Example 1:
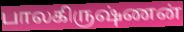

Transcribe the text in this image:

பாலகிருஷ்ணன்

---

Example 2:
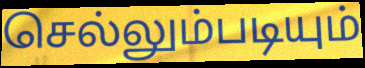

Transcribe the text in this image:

செல்லும்படியும்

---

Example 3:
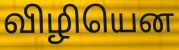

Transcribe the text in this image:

விழியென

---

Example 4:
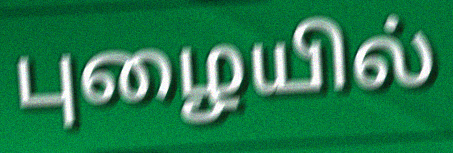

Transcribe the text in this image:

புழையில்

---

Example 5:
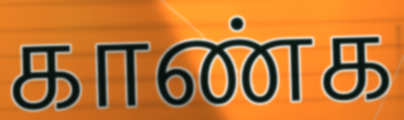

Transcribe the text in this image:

காண்க